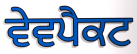
ਵੇਵਪੈਕਟ